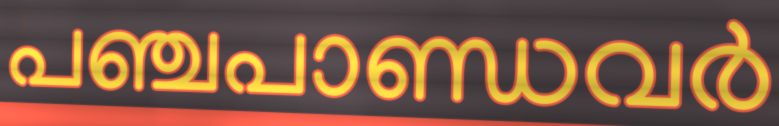
പഞ്ചപാണ്ഡവർ